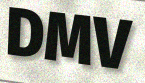
DMV